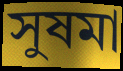
সুষমা